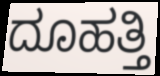
ದೂಹತ್ತಿ